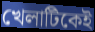
খেলাটিকেই